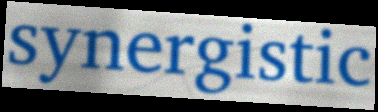
synergistic